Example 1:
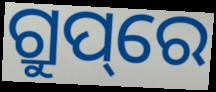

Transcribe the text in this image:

ଗ୍ରୁପ୍‌ରେ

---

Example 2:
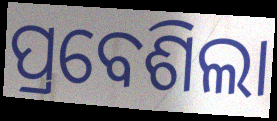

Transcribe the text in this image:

ପ୍ରବେଶିଲା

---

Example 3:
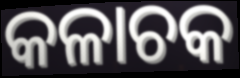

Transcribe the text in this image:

କଳାଚକ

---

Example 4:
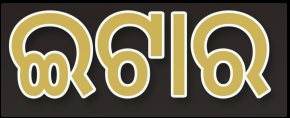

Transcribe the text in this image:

ଇଟାର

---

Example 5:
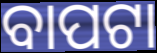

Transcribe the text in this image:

ବାପଟା